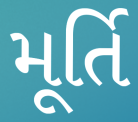
મૂર્તિ